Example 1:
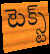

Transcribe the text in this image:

టెక్స్ట్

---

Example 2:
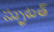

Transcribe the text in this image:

స్ఫుటత్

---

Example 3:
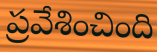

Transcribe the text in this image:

ప్రవేశించింది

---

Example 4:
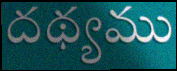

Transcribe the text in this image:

దథ్యము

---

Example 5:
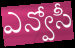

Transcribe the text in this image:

ఎన్వోసీ